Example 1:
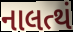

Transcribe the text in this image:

નાલત્થં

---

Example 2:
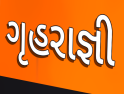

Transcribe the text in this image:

ગૃહરાજ્ઞી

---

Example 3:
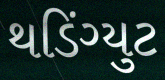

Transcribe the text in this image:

થડિંગ્યુટ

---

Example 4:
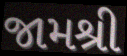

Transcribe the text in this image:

જામશ્રી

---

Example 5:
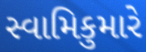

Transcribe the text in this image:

સ્વામિકુમારે